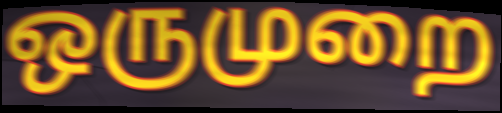
ஒருமுறை